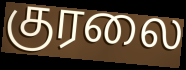
குரலை